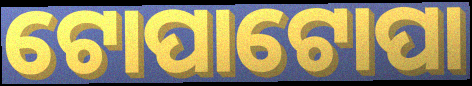
ଟୋପାଟୋପା